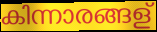
കിന്നാരങ്ങള്